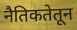
नैतिकतेतून